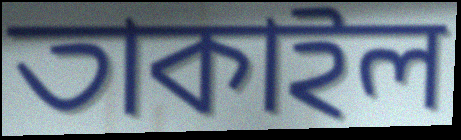
তাকাইল